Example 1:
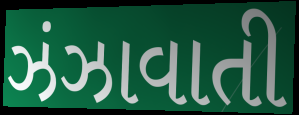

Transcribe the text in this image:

ઝંઝાવાતી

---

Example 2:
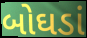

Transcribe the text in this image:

બોઘડાં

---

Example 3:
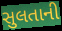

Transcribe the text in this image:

સુલતાની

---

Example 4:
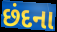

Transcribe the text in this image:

છંદના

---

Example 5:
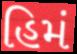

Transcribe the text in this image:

હિમં